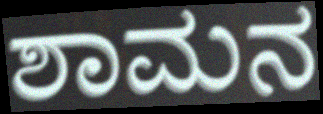
ಶಾಮನ